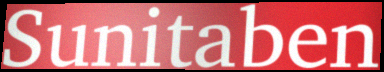
Sunitaben